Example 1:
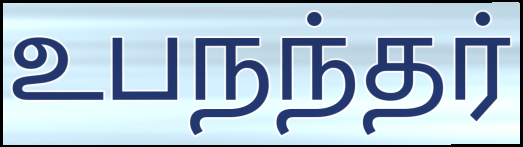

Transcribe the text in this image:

உபநந்தர்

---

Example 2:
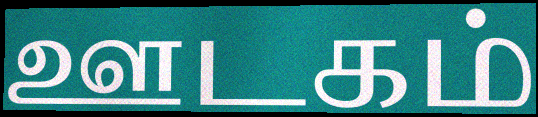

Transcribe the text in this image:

ஊடகம்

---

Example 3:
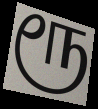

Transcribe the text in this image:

ரூ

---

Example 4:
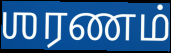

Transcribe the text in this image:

ஶரணம்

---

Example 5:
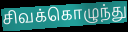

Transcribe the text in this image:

சிவக்கொழுந்து